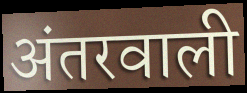
अंतरवाली